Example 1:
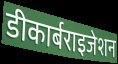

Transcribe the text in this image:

डीकार्बराइजेशन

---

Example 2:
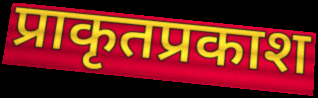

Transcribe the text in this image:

प्राकृतप्रकाश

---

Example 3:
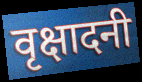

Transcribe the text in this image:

वृक्षादनी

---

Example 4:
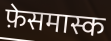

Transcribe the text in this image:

फ़ेसमास्क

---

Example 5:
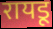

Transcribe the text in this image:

रायडू